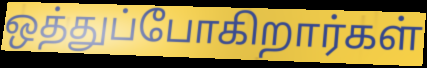
ஒத்துப்போகிறார்கள்